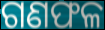
ଗଣଫଳ